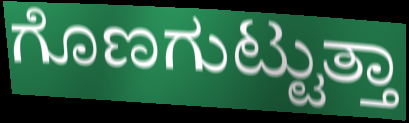
ಗೊಣಗುಟ್ಟುತ್ತಾ